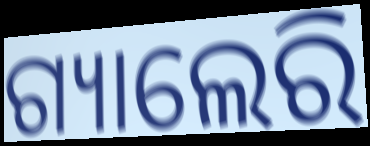
ଗ୍ୟାଲେରି